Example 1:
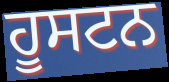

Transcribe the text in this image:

ਹੂਸਟਨ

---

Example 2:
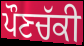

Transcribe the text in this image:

ਪੌਣਚੱਕੀ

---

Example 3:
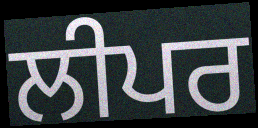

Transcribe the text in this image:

ਲੀਪਰ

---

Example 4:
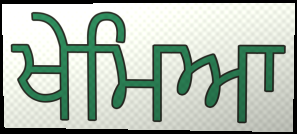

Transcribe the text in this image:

ਖੇਮਿਆ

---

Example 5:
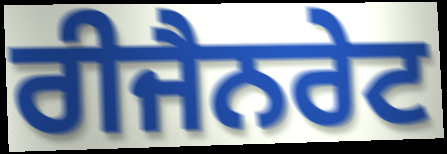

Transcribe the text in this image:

ਰੀਜੈਨਰੇਟ